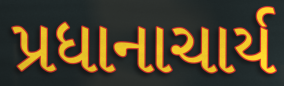
પ્રધાનાચાર્ય